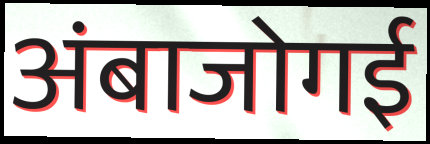
अंबाजोगई